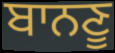
ਬਾਨਣੂ